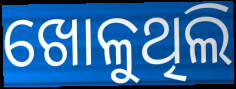
ଖୋଳୁଥିଲି